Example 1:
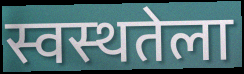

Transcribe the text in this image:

स्वस्थतेला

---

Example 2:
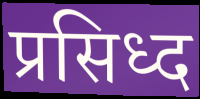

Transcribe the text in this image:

प्रसिध्द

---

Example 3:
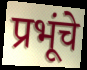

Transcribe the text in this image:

प्रभूंचे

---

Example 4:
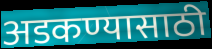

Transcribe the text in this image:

अडकण्यासाठी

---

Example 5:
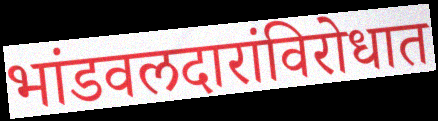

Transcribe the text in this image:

भांडवलदारांविरोधात